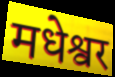
मधेश्वर